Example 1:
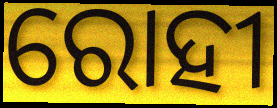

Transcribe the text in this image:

ରୋହୀ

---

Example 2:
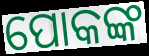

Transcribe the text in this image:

ପୋକଙ୍କ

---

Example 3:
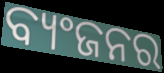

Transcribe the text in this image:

ବ୍ୟଂଜନର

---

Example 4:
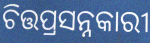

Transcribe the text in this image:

ଚିତ୍ତପ୍ରସନ୍ନକାରୀ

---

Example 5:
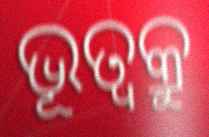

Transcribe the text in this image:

ଭୂତ୍ଵକ୍ରୁ